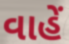
વાહેં